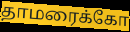
தாமரைக்கோ